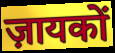
ज़ायकों